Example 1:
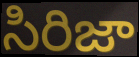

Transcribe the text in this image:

సిరిజా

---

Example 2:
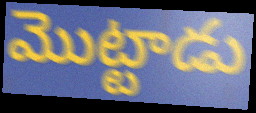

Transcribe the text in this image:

మొట్టాడు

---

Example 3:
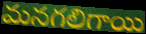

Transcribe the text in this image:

మనగలిగాయి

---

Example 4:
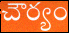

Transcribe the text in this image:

చౌర్యం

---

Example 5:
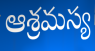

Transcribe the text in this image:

ఆశ్రమస్య